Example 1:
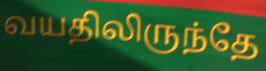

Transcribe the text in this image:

வயதிலிருந்தே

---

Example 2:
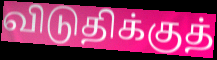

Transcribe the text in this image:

விடுதிக்குத்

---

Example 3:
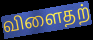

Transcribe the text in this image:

விளைதற்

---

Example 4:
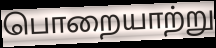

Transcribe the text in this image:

பொறையாற்று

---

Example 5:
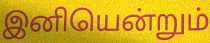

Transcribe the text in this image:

இனியென்றும்